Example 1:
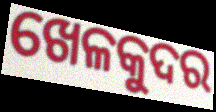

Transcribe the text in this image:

ଖେଳକୁଦର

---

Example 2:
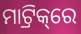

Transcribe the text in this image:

ମାଟ୍ରିକ୍‌ରେ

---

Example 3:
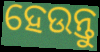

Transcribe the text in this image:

ହେଉନ୍ତୁ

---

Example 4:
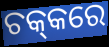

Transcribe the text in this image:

ଚକ୍‌କରେ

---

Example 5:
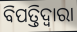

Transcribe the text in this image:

ବିପତ୍ତିଦ୍ୱାରା